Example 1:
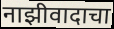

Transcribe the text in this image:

नाझीवादाचा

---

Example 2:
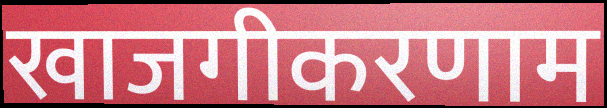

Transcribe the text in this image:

खाजगीकरणाम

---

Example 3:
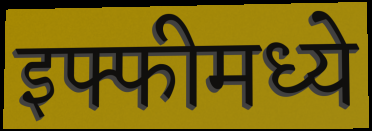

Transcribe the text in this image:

इफ्फीमध्ये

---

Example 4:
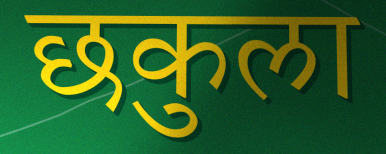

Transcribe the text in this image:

छकुला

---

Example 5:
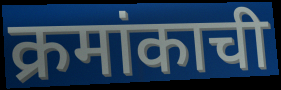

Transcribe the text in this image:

क्रमांकाची